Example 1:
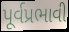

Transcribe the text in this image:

પૂર્વપ્રભાવી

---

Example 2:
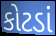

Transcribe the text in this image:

કોટડાં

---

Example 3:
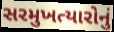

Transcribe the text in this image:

સરમુખત્યારોનું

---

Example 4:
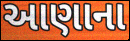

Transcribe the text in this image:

આણાના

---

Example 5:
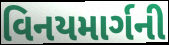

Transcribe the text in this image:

વિનયમાર્ગની